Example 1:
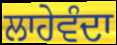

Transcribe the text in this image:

ਲਾਹੇਵੰਦਾ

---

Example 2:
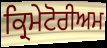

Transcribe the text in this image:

ਕ੍ਰਿਮੇਟੋਰੀਅਮ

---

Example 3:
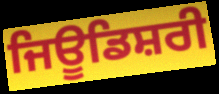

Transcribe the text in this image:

ਜਿਊਡਿਸ਼ਰੀ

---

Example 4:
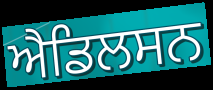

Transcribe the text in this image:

ਐਡਿਲਸਨ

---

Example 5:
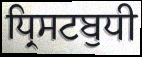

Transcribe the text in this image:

ਧ੍ਰਿਸਟਬੁਧੀ